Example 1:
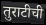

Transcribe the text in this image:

तुराटीची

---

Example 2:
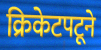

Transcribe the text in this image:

क्रिकेटपटूने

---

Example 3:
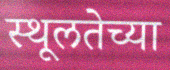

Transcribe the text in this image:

स्थूलतेच्या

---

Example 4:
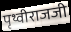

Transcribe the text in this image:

पृथ्वीराजजी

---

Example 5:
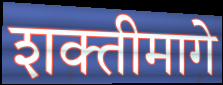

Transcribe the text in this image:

शक्तीमागे